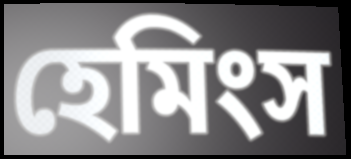
হেমিংস